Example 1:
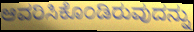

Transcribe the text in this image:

ಆವರಿಸಿಕೊಂಡಿರುವುದನ್ನು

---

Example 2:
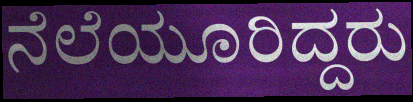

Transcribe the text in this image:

ನೆಲೆಯೂರಿದ್ದರು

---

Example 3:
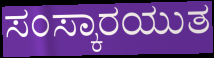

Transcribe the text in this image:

ಸಂಸ್ಕಾರಯುತ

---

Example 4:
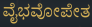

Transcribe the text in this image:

ವೈಭವೋಪೇತ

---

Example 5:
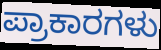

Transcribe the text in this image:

ಪ್ರಾಕಾರಗಳು